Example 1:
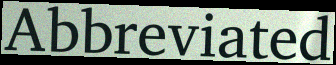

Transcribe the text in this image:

Abbreviated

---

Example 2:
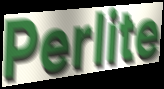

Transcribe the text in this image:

Perlite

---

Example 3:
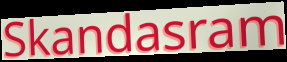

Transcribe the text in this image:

Skandasram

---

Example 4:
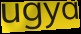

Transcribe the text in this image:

ugya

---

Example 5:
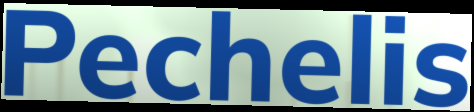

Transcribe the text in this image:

Pechelis